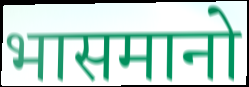
भासमानो